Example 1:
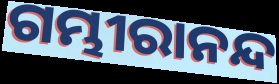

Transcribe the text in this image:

ଗମ୍ଭୀରାନନ୍ଦ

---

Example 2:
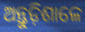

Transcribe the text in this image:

ଅନ୍ତୁଡ଼ିଶାଳେ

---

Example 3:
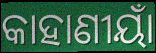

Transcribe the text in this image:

କାହାଣୀୟାଁ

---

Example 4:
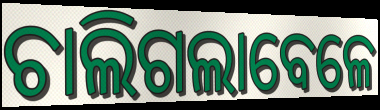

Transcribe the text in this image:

ଚାଲିଗଲାବେଳେ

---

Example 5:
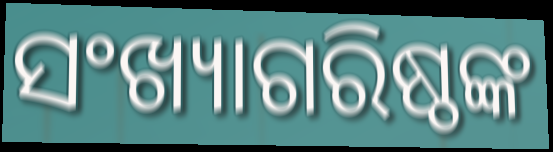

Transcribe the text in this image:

ସଂଖ୍ୟାଗରିଷ୍ଠଙ୍କ